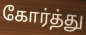
கோர்த்து